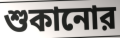
শুকানোর